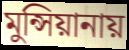
মুন্সিয়ানায়